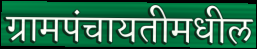
ग्रामपंचायतीमधील